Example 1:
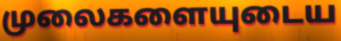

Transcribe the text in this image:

முலைகளையுடைய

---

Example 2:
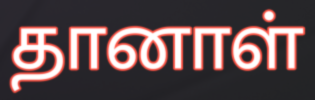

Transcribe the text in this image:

தானாள்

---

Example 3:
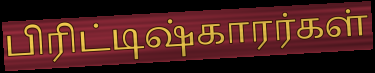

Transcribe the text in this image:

பிரிட்டிஷ்காரர்கள்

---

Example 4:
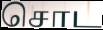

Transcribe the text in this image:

சொட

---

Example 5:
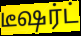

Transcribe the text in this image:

டீஷர்ட்